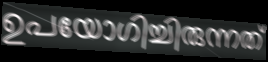
ഉപയോഗിച്ചിരുന്നത്